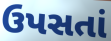
ઉપસતાં